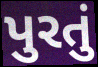
પુરતું